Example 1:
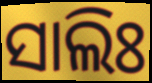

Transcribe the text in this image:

ସାଲିଃ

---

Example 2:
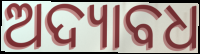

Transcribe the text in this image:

ଅଦ୍ୟାବଧ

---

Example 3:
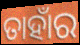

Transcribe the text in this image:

ତାହାଁର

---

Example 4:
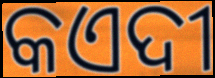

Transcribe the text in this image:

କଏଦୀ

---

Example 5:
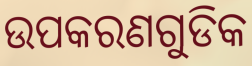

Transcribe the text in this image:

ଉପକରଣଗୁଡିକ